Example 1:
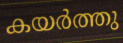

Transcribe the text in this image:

കയർത്തു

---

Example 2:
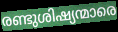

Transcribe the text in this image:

രണ്ടുശിഷ്യന്മാരെ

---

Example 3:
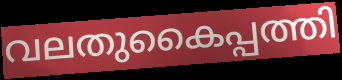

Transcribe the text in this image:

വലതുകൈപ്പത്തി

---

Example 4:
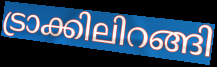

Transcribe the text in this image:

ട്രാക്കിലിറങ്ങി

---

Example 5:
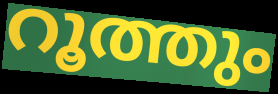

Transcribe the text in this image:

റൂത്തും